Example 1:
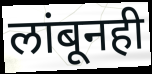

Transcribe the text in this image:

लांबूनही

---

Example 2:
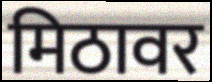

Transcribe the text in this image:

मिठावर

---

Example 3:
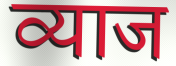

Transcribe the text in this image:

व्याज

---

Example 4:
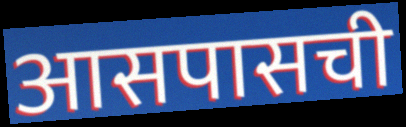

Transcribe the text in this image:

आसपासची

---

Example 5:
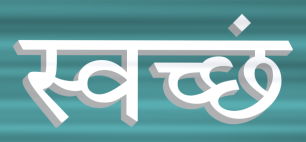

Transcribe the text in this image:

स्वच्छं